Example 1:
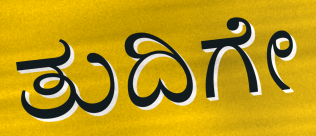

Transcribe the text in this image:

ತುದಿಗೇ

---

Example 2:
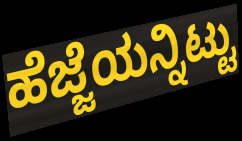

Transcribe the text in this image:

ಹೆಜ್ಜೆಯನ್ನಿಟ್ಟು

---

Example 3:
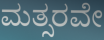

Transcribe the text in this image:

ಮತ್ಸರವೇ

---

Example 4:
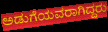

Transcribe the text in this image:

ಅಡುಗೆಯವರಾಗಿದ್ದರು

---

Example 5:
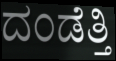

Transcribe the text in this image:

ದಂಡೆತ್ತಿ